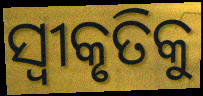
ସ୍ବୀକୃତିକୁ